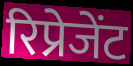
रिप्रेजेंट